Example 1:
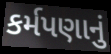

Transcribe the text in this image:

કર્મપણાનું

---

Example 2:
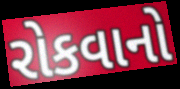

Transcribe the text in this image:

રોકવાનો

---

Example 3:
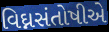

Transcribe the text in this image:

વિઘ્નસંતોષીએ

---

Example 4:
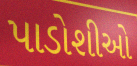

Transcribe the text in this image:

પાડોશીઓ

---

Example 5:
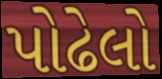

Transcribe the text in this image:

પોઢેલો